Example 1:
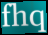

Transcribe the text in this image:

fhq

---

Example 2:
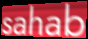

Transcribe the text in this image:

sahab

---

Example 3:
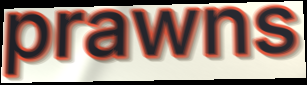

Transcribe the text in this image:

prawns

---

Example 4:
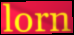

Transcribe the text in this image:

lorn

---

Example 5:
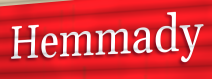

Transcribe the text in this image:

Hemmady